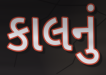
કાલનું